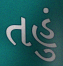
તહું